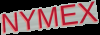
NYMEX